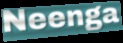
Neenga